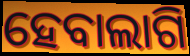
ହେବାଲାଗି